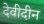
देवीदीन